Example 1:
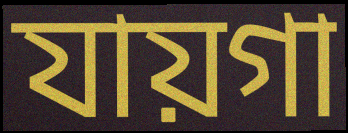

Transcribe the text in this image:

যায়গা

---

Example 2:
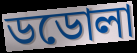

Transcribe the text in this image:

ডডোলা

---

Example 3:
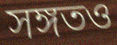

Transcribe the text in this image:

সঙ্গতও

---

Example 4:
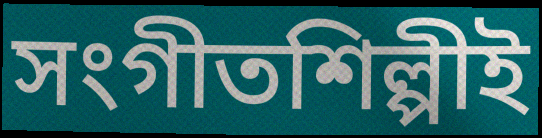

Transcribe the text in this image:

সংগীতশিল্পীই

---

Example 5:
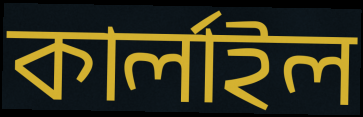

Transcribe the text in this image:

কার্লাইল